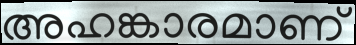
അഹങ്കാരമാണ്